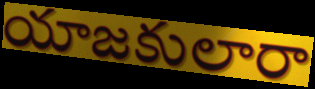
యాజకులారా